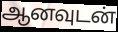
ஆனவுடன்